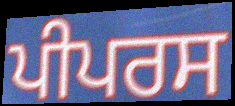
ਪੀਪਰਸ